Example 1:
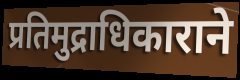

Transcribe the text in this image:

प्रतिमुद्राधिकाराने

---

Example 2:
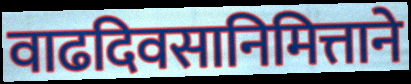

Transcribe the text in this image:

वाढदिवसानिमित्ताने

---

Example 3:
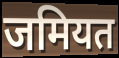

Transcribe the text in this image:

जमियत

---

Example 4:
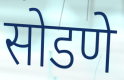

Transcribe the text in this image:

सोडणे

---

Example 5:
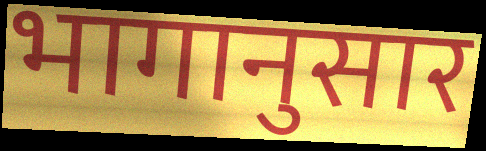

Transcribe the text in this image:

भागानुसार